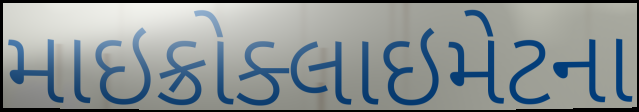
માઇક્રોક્લાઇમેટના